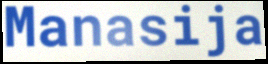
Manasija